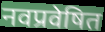
नवप्रवेषित